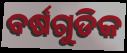
ବର୍ଷଗୁଡିକ